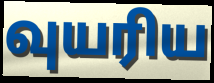
வுயரிய